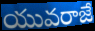
యువరాజే